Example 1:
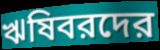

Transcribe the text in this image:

ঋষিবরদের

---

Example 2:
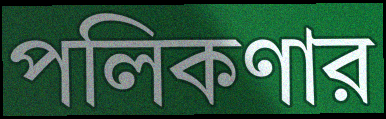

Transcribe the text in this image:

পলিকণার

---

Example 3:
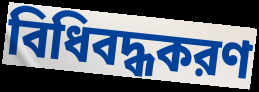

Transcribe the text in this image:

বিধিবদ্ধকরণ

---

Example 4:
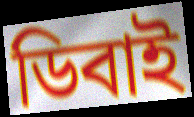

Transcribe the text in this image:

ডিবাই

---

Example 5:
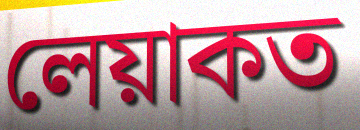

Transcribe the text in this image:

লেয়াকত